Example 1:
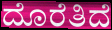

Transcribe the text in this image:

ದೊರೆತಿದೆ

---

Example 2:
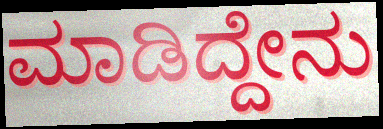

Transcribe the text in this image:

ಮಾಡಿದ್ದೇನು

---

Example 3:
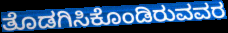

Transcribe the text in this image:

ತೊಡಗಿಸಿಕೊಂಡಿರುವವರ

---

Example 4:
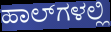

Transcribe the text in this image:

ಹಾಲ್‌ಗಳಲ್ಲಿ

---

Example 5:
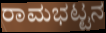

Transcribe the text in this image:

ರಾಮಭಟ್ಟನ